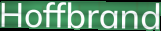
Hoffbrand